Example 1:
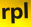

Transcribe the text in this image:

rpl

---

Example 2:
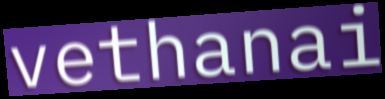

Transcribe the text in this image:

vethanai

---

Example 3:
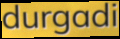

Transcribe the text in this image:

durgadi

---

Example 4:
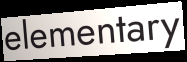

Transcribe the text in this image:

elementary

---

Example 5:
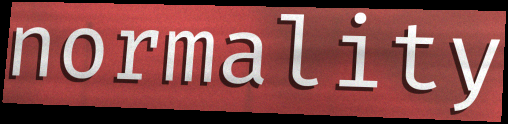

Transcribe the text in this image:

normality